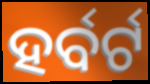
ହର୍ବର୍ଟ